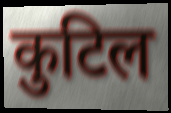
कुटिल